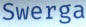
Swerga